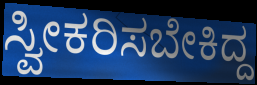
ಸ್ವೀಕರಿಸಬೇಕಿದ್ದ